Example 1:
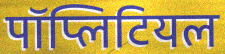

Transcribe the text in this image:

पॉप्लिटियल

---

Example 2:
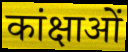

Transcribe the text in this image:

कांक्षाओं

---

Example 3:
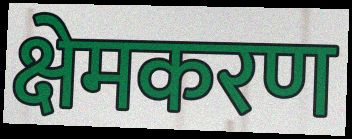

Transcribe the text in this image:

क्षेमकरण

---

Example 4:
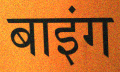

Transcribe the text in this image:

बाइंग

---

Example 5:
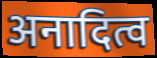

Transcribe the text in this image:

अनादित्व